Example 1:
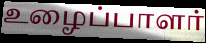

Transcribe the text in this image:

உழைப்பாளர்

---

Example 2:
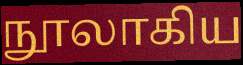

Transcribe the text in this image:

நூலாகிய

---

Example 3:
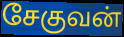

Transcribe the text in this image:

சேகுவன்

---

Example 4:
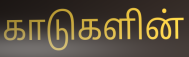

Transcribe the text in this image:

காடுகளின்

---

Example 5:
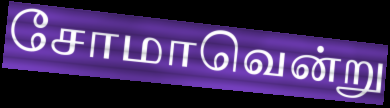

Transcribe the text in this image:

சோமாவென்று